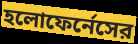
হলোফের্নেসের